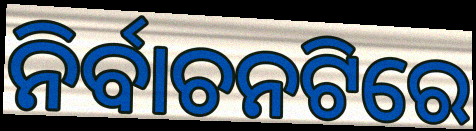
ନିର୍ବାଚନଟିରେ